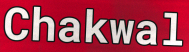
Chakwal